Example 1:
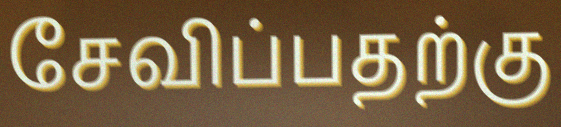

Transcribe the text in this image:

சேவிப்பதற்கு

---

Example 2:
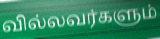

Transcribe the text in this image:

வில்லவர்களும்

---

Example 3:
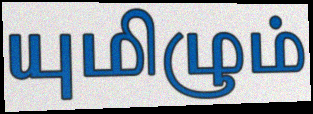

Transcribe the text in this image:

யுமிழும்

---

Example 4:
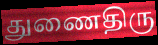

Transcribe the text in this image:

துணைதிரு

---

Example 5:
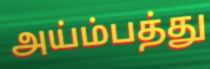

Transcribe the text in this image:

அய்ம்பத்து